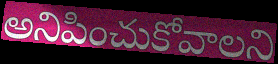
అనిపించుకోవాలని